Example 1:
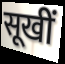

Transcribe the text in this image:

सूखीं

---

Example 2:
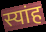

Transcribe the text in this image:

स्यांह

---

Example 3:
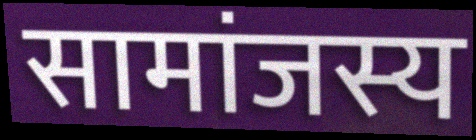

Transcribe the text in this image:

सामांजस्य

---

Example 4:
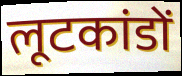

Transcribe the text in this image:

लूटकांडों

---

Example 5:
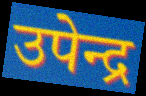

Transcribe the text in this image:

उपेन्द्र